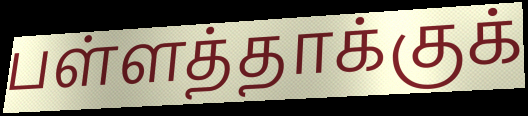
பள்ளத்தாக்குக்